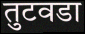
तुटवडा